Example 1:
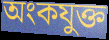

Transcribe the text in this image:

অংকযুক্ত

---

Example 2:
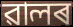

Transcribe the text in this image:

ৱালৰ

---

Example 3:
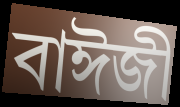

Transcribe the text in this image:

বাঈজী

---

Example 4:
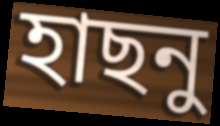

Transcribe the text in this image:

হাছনু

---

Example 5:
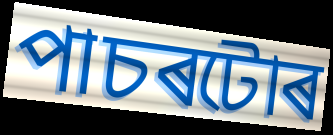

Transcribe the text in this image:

পাচৰটোৰ